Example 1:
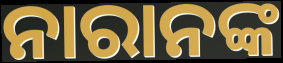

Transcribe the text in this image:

ନାରାନଙ୍କ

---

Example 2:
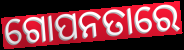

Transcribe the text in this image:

ଗୋପନତାରେ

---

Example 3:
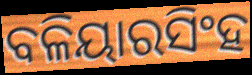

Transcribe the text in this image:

ବଳିୟାରସିଂହ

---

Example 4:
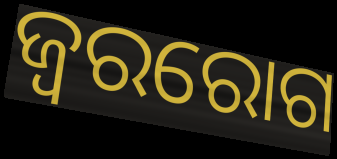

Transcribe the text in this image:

ଜ୍ୱରରୋଗ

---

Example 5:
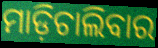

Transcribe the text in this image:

ମାଡ଼ିଚାଲିବାର